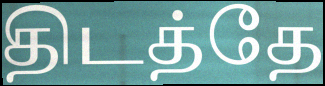
திடத்தே